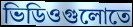
ভিডিওগুলোতে